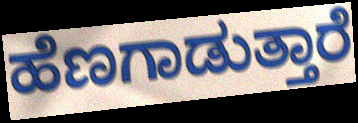
ಹೆಣಗಾಡುತ್ತಾರೆ